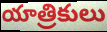
యాత్రికులు